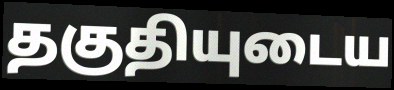
தகுதியுடைய